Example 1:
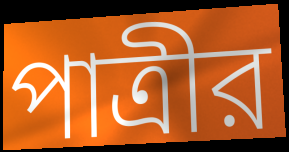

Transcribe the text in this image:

পাত্রীর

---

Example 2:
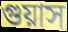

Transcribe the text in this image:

গুয়াস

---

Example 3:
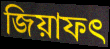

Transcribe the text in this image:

জিয়াফৎ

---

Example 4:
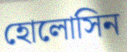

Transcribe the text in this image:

হোলোসিন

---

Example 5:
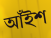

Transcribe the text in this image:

আঁইশ